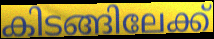
കിടങ്ങിലേക്ക്